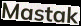
Mastak